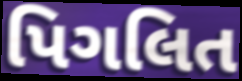
પિગલિત